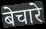
बेचारे